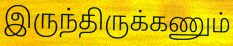
இருந்திருக்கணும்